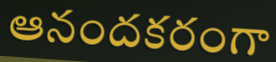
ఆనందకరంగా